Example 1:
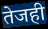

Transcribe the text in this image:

तेजही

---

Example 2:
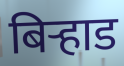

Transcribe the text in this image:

बिऱ्हाड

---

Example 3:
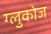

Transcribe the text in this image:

ग्लुकोज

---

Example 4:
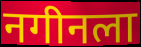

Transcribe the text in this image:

नगीनला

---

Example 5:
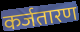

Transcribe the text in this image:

कर्जतारण